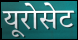
यूरोसेट